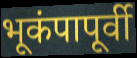
भूकंपापूर्वी